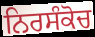
ਨਿਰਸੰਕੋਚ